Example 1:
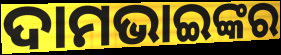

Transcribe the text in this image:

ଦାମଭାଇଙ୍କର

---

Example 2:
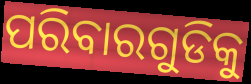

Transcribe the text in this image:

ପରିବାରଗୁଡିକୁ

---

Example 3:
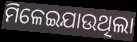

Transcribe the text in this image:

ମିଳେଇଯାଉଥିଲା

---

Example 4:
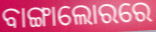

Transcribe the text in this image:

ବାଙ୍ଗାଲୋରରେ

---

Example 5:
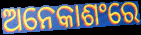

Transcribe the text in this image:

ଅନେକାଶଂରେ